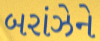
બરાંઝેને